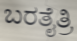
ಬರತೈತ್ರಿ